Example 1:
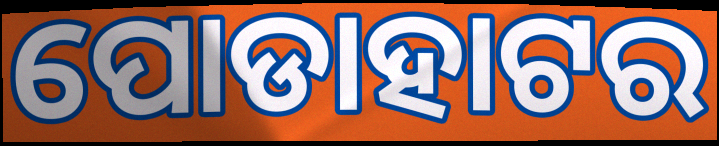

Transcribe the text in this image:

ପୋଡାହାଟର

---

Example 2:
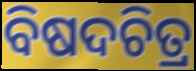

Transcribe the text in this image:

ବିଷଦଚିତ୍ର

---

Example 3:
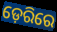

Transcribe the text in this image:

ଡ଼େରିରେ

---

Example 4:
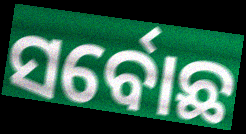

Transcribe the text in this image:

ସର୍ବୋଛ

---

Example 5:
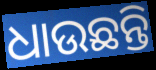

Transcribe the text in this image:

ଧାଉଛନ୍ତି